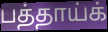
பத்தாய்க்